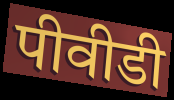
पीवीडी